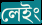
লেইং